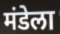
मंडेला